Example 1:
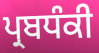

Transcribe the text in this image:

ਪ੍ਰਬਧੰਕੀ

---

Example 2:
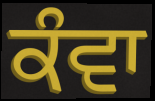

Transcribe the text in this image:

ਕੰਵਾ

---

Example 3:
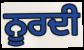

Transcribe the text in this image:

ਨੂਰਦੀ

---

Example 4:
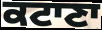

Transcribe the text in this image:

ਕਟਾਣਾ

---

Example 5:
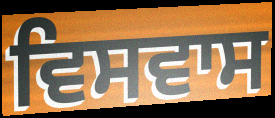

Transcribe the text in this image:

ਵਿਸਵਾਸ